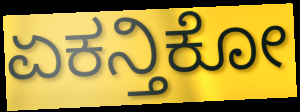
ಏಕನ್ತಿಕೋ